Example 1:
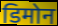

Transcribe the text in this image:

डिमोन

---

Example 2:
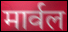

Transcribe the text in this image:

मार्वल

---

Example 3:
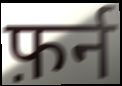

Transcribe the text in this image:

फ़र्न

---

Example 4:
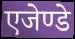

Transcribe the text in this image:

एजेण्डे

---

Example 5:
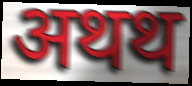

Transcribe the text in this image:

अथथ